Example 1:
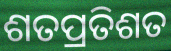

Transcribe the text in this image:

ଶତପ୍ରତିଶତ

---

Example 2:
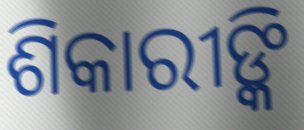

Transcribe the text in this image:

ଶିକାରୀଙ୍କି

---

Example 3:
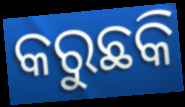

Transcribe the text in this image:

କରୁଛକି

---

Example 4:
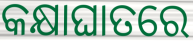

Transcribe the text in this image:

କକ୍ଷାଘାତରେ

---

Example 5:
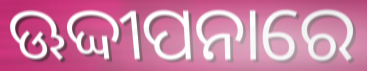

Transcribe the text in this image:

ଊଦ୍ଦୀପନାରେ